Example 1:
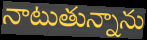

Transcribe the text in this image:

నాటుతున్నాను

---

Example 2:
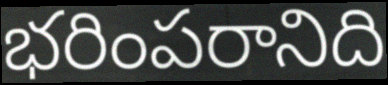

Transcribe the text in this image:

భరింపరానిది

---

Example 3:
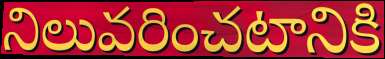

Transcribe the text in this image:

నిలువరించటానికి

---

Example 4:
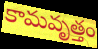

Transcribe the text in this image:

కామవృత్తం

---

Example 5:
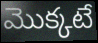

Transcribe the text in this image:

మొక్కటే